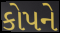
કોપને